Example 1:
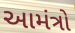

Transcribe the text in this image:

આમંત્રો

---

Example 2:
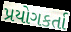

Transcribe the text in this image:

પ્રયોગકર્તા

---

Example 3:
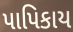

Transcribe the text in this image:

પાપિકાય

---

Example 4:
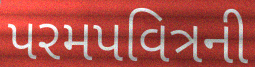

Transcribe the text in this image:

પરમપવિત્રની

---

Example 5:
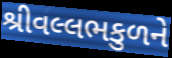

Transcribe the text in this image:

શ્રીવલ્લભકુળને